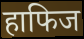
हाफिज